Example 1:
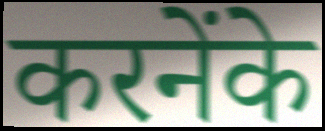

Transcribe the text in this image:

करनेंके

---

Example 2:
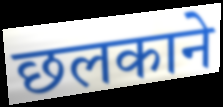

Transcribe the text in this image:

छलकाने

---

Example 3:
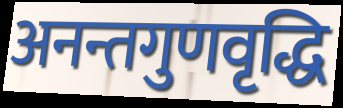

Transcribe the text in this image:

अनन्तगुणवृद्धि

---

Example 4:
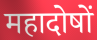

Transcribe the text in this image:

महादोषों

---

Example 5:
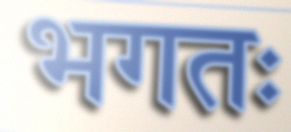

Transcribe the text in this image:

भगतः